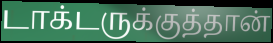
டாக்டருக்குத்தான்